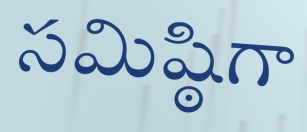
సమిష్ఠిగా